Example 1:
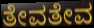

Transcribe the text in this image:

ತೇವತೇವ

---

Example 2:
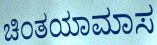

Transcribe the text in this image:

ಚಿಂತಯಾಮಾಸ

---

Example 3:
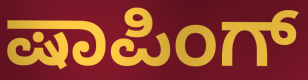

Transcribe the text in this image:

ಷಾಪಿಂಗ್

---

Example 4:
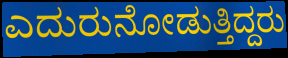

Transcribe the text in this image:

ಎದುರುನೋಡುತ್ತಿದ್ದರು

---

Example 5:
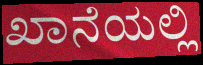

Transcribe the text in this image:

ಖಾನೆಯಲ್ಲಿ